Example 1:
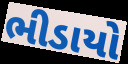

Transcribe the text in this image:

ભીડાયો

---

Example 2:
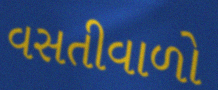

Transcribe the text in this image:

વસતીવાળો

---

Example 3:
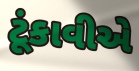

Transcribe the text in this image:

ટૂંકાવીએ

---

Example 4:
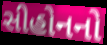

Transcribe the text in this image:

સીહોનનો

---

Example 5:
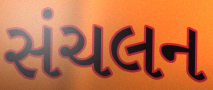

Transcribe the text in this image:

સંચલન